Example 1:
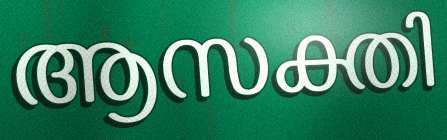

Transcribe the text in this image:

ആസക്തി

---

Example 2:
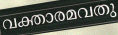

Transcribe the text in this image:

വക്താരമവതു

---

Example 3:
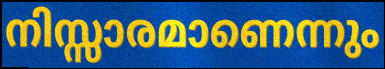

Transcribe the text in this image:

നിസ്സാരമാണെന്നും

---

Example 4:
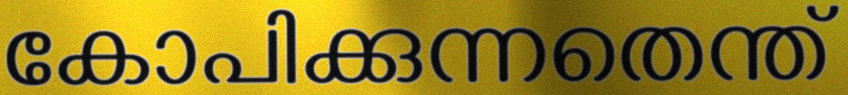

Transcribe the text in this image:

കോപിക്കുന്നതെന്ത്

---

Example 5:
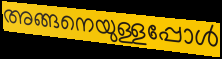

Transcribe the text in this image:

അങ്ങനെയുള്ളപ്പോൾ